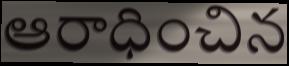
ఆరాధించిన